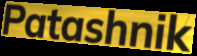
Patashnik